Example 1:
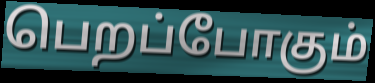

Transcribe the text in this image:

பெறப்போகும்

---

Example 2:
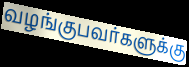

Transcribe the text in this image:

வழங்குபவர்களுக்கு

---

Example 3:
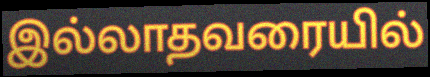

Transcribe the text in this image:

இல்லாதவரையில்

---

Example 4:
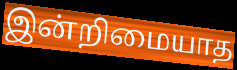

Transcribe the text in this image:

இன்றிமையாத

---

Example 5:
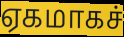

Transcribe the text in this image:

ஏகமாகச்